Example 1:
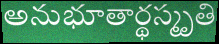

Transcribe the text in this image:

అనుభూతార్థస్మృతి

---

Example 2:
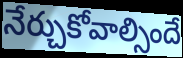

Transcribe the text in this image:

నేర్చుకోవాల్సిందే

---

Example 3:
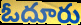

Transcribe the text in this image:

ఓదూరు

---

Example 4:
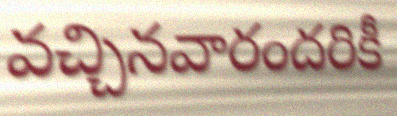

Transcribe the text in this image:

వచ్చినవారందరికీ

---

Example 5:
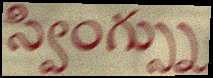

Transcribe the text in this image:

స్వింగ్స్ను